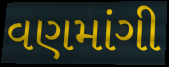
વણમાંગી